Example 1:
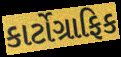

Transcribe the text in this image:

કાર્ટોગ્રાફિક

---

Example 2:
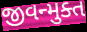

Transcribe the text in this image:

જીવન્મુક્ત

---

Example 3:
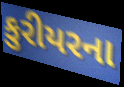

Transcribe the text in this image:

કુરીયરના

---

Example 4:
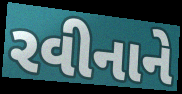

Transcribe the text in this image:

રવીનાને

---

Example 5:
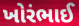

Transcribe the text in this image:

ખોરંભાઈ